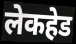
लेकहेड